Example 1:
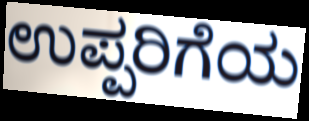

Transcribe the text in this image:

ಉಪ್ಪರಿಗೆಯ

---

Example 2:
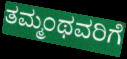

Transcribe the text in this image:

ತಮ್ಮಂಥವರಿಗೆ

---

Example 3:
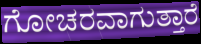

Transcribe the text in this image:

ಗೋಚರವಾಗುತ್ತಾರೆ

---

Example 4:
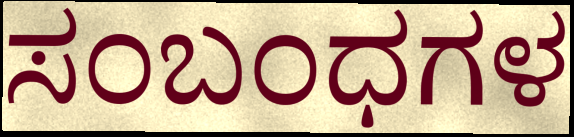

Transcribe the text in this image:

ಸಂಬಂಧಗಳ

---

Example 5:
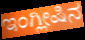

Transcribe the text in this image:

ಇಂಗ್ಲೀಷಿನ